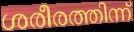
ശരീരത്തിന്ന്